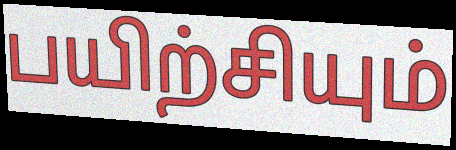
பயிற்சியும்